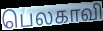
பெலகாவி